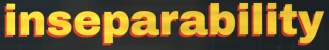
inseparability